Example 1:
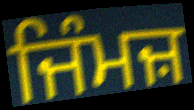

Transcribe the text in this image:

ਜਿੰਮਜ਼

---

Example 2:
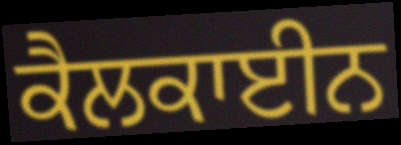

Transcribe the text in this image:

ਕੈਲਕਾਈਨ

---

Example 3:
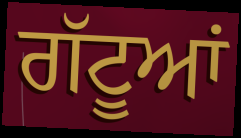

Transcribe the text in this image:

ਗੱਟੂਆਂ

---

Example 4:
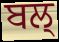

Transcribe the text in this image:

ਬਲ੍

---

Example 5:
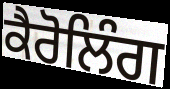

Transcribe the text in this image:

ਕੈਰੋਲਿੰਗ